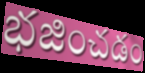
భజించడం